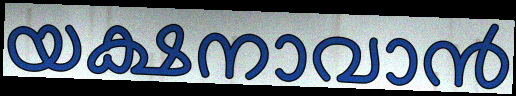
യക്ഷനാവാൻ